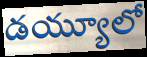
డయ్యూలో